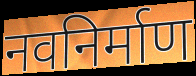
नवनिर्माण